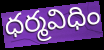
ధర్మవిధిం